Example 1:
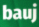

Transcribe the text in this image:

bauj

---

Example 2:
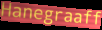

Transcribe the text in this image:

Hanegraaff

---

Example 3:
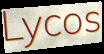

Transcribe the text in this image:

Lycos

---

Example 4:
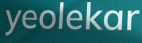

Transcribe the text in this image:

yeolekar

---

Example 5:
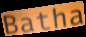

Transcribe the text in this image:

Batha